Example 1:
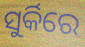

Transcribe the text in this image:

ସୁର୍କିରେ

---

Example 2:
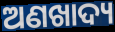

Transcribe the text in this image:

ଅଣଖାଦ୍ୟ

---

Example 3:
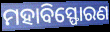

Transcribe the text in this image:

ମହାବିସ୍ଫୋରଣ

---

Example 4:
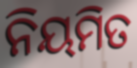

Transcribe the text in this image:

ନିୟମିତ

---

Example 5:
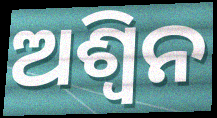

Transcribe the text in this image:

ଅଶ୍ଵିନ